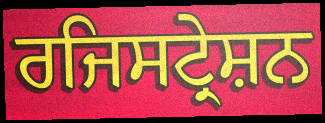
ਰਜਿਸਟ੍ਰੇਸ਼ਨ